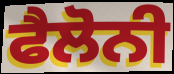
ਫੈਲੋਨੀ